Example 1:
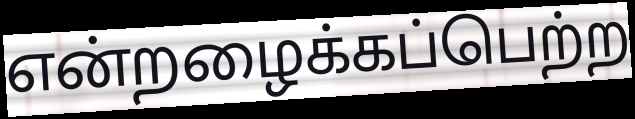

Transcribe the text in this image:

என்றழைக்கப்பெற்ற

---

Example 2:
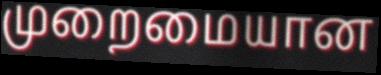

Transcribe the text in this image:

முறைமையான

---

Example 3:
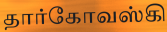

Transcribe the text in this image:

தார்கோவஸ்கி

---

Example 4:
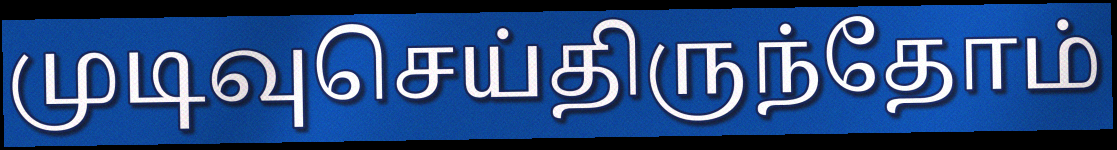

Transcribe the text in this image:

முடிவுசெய்திருந்தோம்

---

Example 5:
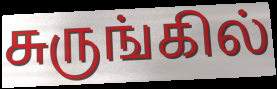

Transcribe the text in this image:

சுருங்கில்